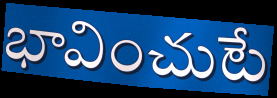
భావించుటే